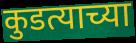
कुडत्याच्या